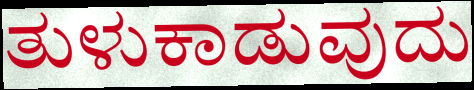
ತುಳುಕಾಡುವುದು